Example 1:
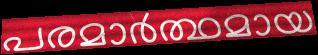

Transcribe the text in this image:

പരമാർത്ഥമായ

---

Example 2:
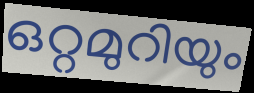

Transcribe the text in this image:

ഒറ്റമുറിയും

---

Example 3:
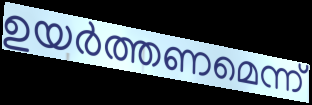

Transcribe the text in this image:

ഉയർത്തണമെന്ന്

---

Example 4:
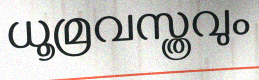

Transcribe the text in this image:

ധൂമ്രവസ്ത്രവും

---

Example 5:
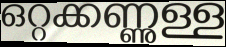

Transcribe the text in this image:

ഒറ്റക്കണ്ണുള്ള